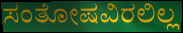
ಸಂತೋಷವಿರಲಿಲ್ಲ